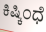
ಕಿಷ್ಕಿಂಧೆ